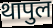
थापुल